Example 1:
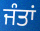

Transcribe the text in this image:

ਜੰਤਾਂ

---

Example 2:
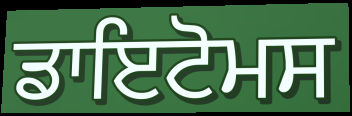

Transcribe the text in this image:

ਡਾਇਟੋਮਸ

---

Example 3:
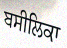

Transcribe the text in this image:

ਬਸੀਲਿਕਾ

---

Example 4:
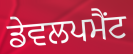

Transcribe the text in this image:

ਡੇਵਲਪਮੈਂਟ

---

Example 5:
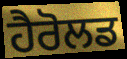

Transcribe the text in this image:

ਹੈਰੋਲਡ